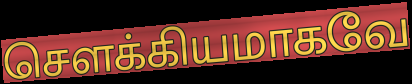
சௌக்கியமாகவே